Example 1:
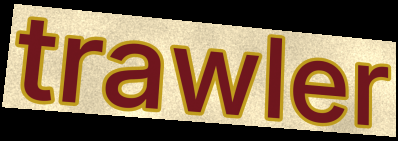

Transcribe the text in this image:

trawler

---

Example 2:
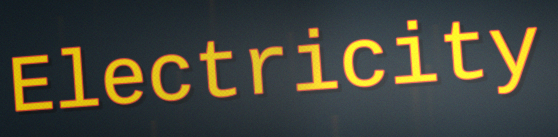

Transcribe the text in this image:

Electricity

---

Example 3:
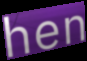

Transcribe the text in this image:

hen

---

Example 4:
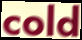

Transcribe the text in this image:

cold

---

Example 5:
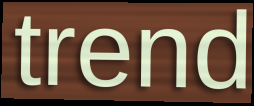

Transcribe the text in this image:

trend